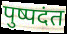
पुष्पदंत